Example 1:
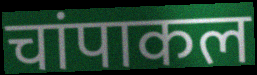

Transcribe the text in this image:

चांपाकल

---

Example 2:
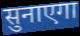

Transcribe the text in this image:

सुनाएगा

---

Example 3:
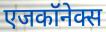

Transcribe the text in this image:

एजकॉनेक्स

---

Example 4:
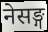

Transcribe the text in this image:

नेसङ्ग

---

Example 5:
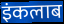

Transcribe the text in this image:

इंकलाब